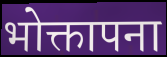
भोक्तापना